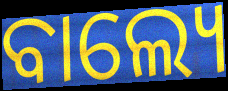
ବାଲ୍ୟେ